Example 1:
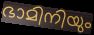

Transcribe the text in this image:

ഭാമിനിയും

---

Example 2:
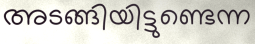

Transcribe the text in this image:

അടങ്ങിയിട്ടുണ്ടെന്ന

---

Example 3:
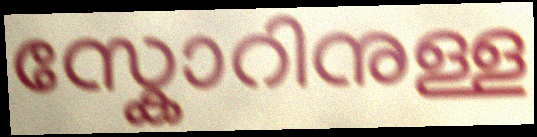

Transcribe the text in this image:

സ്കോറിനുള്ള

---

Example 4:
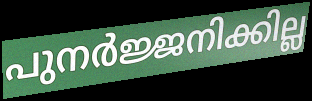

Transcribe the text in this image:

പുനർജ്ജനിക്കില്ല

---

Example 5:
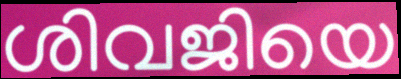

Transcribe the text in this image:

ശിവജിയെ